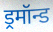
ड्रमॉन्ड